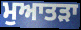
ਮੁਆਤੜਾ